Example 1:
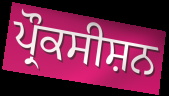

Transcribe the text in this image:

ਪ੍ਰੌਕਸੀਸ਼ਨ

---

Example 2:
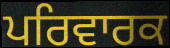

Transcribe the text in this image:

ਪਰਿਵਾਰਕ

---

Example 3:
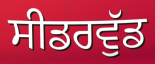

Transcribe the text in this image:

ਸੀਡਰਵੁੱਡ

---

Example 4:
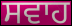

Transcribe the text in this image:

ਸਵਾਹ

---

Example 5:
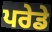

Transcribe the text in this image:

ਪਰੇਡੇ